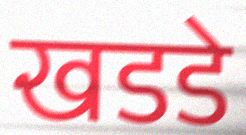
खडडे